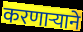
करणाऱ्याने